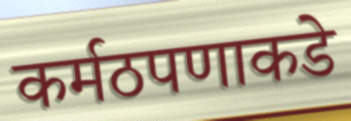
कर्मठपणाकडे